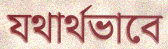
যথার্থভাবে